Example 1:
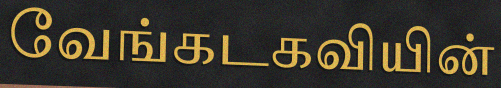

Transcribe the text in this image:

வேங்கடகவியின்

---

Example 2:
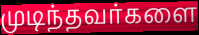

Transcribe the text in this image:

முடிந்தவர்களை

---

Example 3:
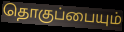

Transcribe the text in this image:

தொகுப்பையும்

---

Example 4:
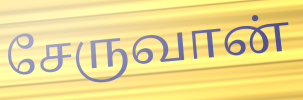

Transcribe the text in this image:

சேருவான்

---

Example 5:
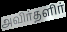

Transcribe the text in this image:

அவிர்தளிர்